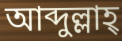
আব্দুল্লাহ্